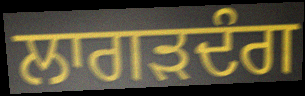
ਲਾਗੜਦੰਗ